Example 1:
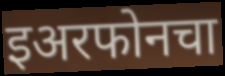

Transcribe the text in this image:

इअरफोनचा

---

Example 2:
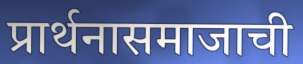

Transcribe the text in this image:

प्रार्थनासमाजाची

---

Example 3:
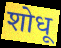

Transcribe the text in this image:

शोधू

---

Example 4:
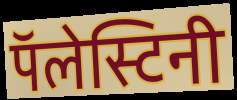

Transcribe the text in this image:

पॅलेस्टिनी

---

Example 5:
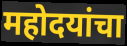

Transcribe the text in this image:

महोदयांचा